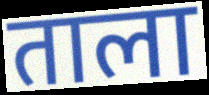
ताला